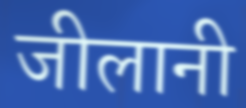
जीलानी